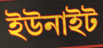
ইউনাইট